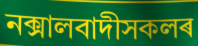
নক্সালবাদীসকলৰ